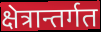
क्षेत्रान्तर्गत